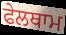
ਫੇਲਥਾਮ